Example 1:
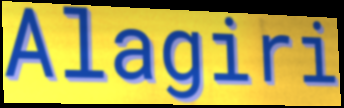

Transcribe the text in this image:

Alagiri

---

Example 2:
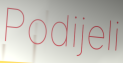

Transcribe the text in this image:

Podijeli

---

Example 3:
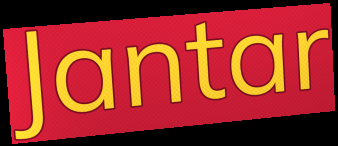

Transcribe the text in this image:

Jantar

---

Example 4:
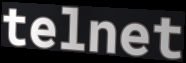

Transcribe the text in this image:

telnet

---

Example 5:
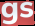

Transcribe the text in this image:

gs